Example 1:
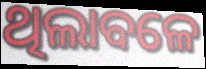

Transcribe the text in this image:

ଥିଲାବଳେ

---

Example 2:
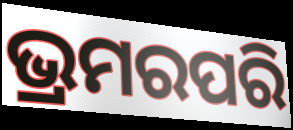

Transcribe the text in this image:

ଭ୍ରମରପରି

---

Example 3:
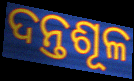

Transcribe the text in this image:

ଦନ୍ତଶୂଳ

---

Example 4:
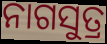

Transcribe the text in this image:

ନାଗସୁତ୍ର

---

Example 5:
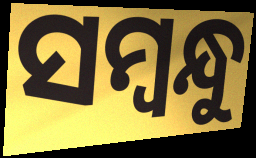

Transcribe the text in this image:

ସମ୍ବନ୍ଧୁ